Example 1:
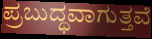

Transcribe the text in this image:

ಪ್ರಬುದ್ಧವಾಗುತ್ತವೆ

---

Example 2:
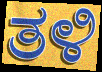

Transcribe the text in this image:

ತಳಿ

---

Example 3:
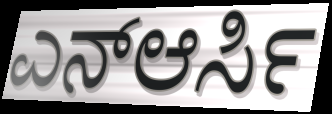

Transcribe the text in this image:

ಎನ್ಆರ್ಸಿ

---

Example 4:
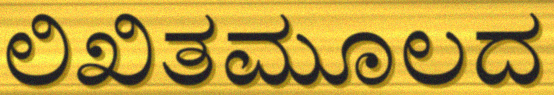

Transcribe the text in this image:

ಲಿಖಿತಮೂಲದ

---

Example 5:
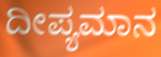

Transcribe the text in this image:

ದೀಪ್ಯಮಾನ